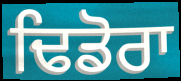
ਢਿਡੋਰਾ